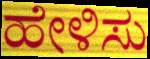
ಹೇಳಿಸು